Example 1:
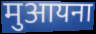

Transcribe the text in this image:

मुआयना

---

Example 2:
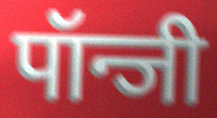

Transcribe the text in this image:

पॉन्जी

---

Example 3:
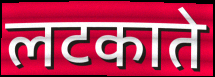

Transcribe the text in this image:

लटकाते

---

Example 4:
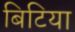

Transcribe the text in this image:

बिटिया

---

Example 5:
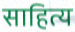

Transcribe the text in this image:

साहित्य